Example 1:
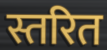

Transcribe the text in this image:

स्तरित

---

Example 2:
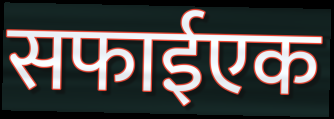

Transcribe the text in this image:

सफाईएक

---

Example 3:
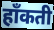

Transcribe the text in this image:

हाँकती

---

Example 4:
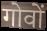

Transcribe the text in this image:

गोवों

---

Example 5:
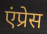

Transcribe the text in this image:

एंप्रेस